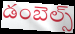
డంబెల్స్